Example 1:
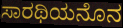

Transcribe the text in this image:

ಸಾರಥಿಯನೊನ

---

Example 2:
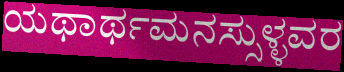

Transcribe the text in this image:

ಯಥಾರ್ಥಮನಸ್ಸುಳ್ಳವರ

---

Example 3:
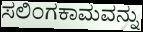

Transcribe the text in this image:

ಸಲಿಂಗಕಾಮವನ್ನು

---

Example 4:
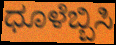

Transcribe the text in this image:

ಧೂಳೆಬ್ಬಿಸಿ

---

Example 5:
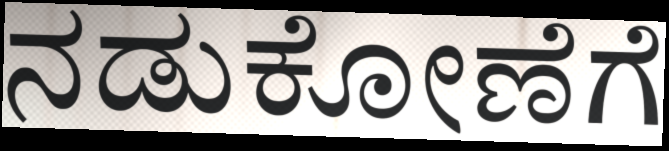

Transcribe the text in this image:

ನಡುಕೋಣೆಗೆ